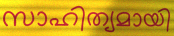
സാഹിത്യമായി